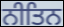
ਨੀਤਿਨ